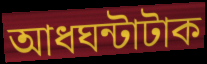
আধঘন্টাটাক